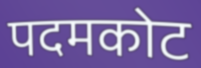
पदमकोट